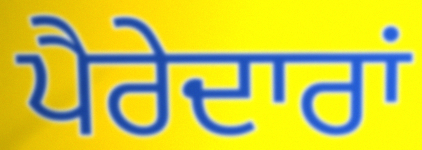
ਪੈਰੇਦਾਰਾਂ